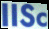
IISc